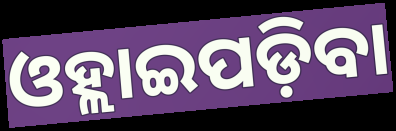
ଓହ୍ଲାଇପଡ଼ିବା